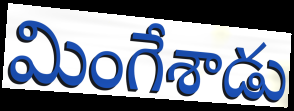
మింగేశాడు